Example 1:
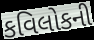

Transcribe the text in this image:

કવિલોકની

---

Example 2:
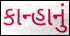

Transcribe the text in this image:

કાન્હાનું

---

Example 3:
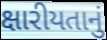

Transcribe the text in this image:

ક્ષારીયતાનું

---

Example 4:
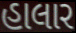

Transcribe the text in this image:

હાલાર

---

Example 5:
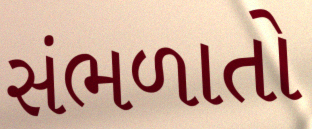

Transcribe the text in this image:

સંભળાતો